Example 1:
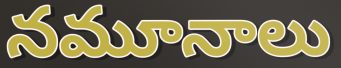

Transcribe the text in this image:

నమూనాలు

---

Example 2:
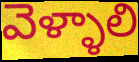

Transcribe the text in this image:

వెళ్ళాలి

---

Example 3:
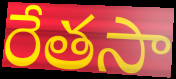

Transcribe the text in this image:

రేతసా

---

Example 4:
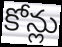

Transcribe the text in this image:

కోన్లు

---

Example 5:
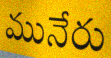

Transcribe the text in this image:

మునేరు